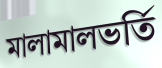
মালামালভর্তি